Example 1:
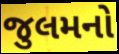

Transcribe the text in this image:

જુલમનો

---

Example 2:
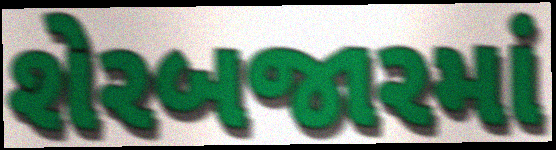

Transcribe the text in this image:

શેરબજારમાં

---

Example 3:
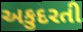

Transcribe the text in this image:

અકુદરતી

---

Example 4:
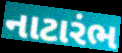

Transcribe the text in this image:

નાટારંભ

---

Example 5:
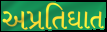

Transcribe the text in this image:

અપ્રતિઘાત